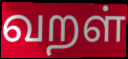
வறள்